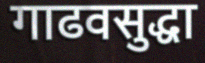
गाढवसुद्धा